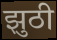
झुठी